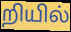
றியில்